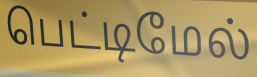
பெட்டிமேல்